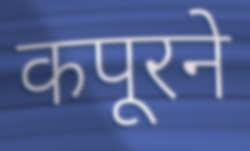
कपूरने